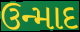
ઉન્માદ